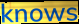
knows